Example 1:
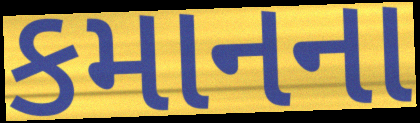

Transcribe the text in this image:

કમાનના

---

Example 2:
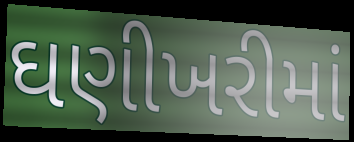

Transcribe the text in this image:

ઘણીખરીમાં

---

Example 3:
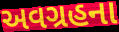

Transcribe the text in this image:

અવગ્રહના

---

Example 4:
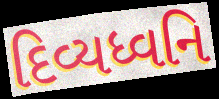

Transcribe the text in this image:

દિવ્યધ્વનિ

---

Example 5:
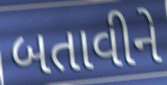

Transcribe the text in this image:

બતાવીને